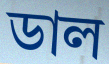
ডাল